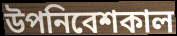
উপনিবেশকাল